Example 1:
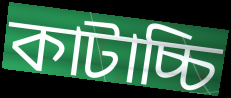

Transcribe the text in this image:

কাটাচ্চি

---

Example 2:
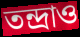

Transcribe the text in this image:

তন্দ্রাও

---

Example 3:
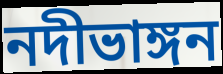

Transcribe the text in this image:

নদীভাঙ্গন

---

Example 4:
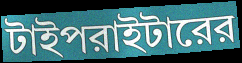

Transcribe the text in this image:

টাইপরাইটারের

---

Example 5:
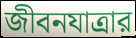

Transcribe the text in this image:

জীবনযাত্রার